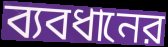
ব্যবধানের